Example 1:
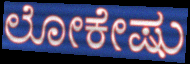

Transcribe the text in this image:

ಲೋಕೇಷು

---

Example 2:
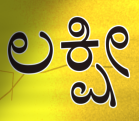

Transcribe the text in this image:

ಲಕ್ಷೀ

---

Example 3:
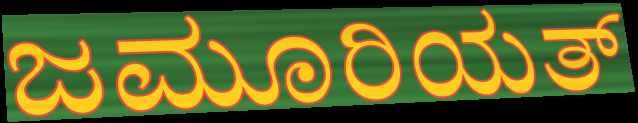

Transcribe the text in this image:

ಜಮೂರಿಯತ್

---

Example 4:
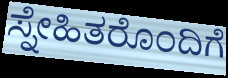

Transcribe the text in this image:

ಸ್ನೇಹಿತರೊಂದಿಗೆ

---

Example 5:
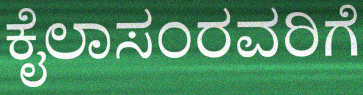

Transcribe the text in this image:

ಕೈಲಾಸಂರವರಿಗೆ